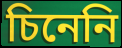
চিনেনি